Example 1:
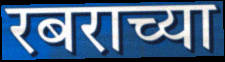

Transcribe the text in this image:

रबराच्या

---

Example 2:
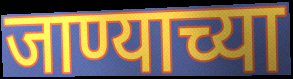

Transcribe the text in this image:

जाण्याच्या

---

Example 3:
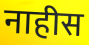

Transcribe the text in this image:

नाहीस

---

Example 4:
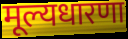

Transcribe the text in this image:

मूल्यधारणा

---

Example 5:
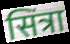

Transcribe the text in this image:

सिंत्रा